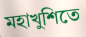
মহাখুশিতে